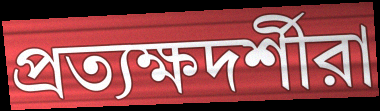
প্রত্যক্ষদর্শীরা